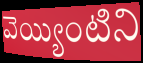
వెయ్యింటిని